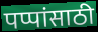
पप्पांसाठी